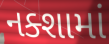
નક્શામાં